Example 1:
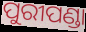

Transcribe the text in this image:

ପୁରୀପଣ୍ଡା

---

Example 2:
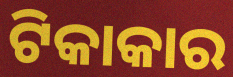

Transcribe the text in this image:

ଟିକାକାର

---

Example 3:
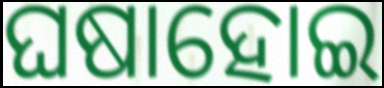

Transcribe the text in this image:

ଘଷାହୋଇ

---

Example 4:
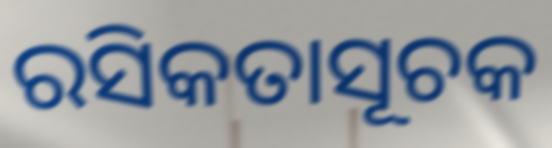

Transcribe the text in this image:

ରସିକତାସୂଚକ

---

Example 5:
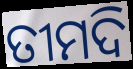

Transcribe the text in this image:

ତୀମଦି